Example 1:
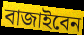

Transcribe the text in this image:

বাজাইবেন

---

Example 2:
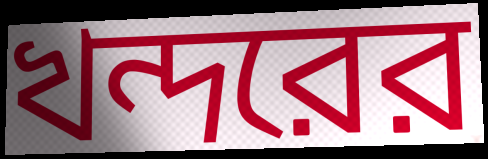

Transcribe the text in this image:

খন্দরের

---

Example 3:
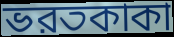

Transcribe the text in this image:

ভরতকাকা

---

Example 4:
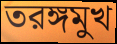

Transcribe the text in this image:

তরঙ্গমুখ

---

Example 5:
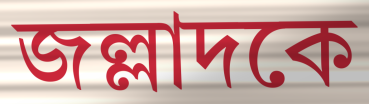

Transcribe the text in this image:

জল্লাদকে